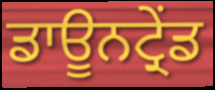
ਡਾਊਨਟ੍ਰੇਂਡ